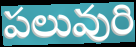
పలువురి